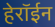
हेरॉईन